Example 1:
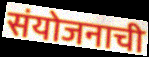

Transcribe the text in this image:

संयोजनाची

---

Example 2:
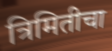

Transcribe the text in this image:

त्रिमितीचा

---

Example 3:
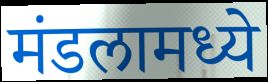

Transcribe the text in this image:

मंडलामध्ये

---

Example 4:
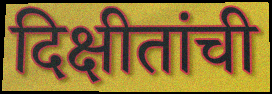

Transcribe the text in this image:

दिक्षीतांची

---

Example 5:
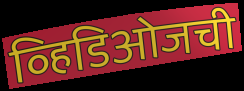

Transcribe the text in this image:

व्हिडिओजची